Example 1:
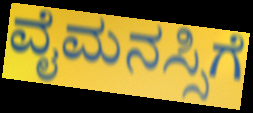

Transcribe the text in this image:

ವೈಮನಸ್ಸಿಗೆ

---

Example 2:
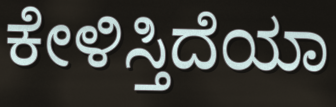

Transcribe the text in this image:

ಕೇಳಿಸ್ತಿದೆಯಾ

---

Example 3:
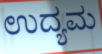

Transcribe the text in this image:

ಉದ್ಯಮ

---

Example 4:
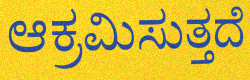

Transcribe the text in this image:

ಆಕ್ರಮಿಸುತ್ತದೆ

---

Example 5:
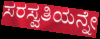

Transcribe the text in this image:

ಸರಸ್ವತಿಯನ್ನೇ